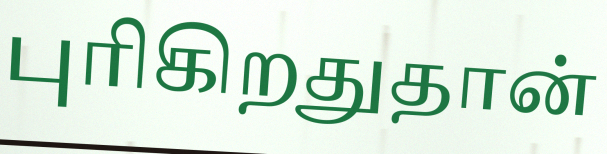
புரிகிறதுதான்